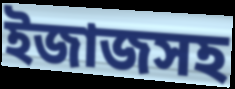
ইজাজসহ